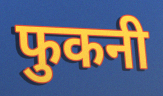
फुकनी